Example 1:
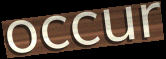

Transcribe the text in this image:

occur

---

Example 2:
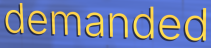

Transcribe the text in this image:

demanded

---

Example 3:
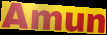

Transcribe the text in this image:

Amun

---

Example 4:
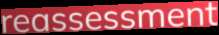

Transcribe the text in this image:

reassessment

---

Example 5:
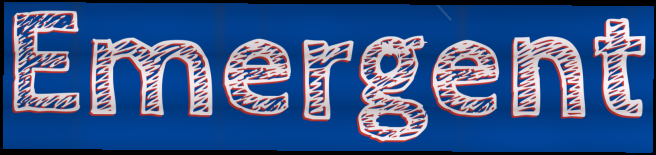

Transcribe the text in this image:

Emergent